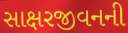
સાક્ષરજીવનની